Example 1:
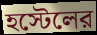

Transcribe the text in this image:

হস্টেলের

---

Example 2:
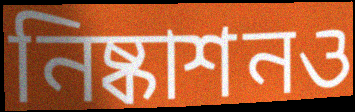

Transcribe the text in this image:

নিষ্কাশনও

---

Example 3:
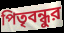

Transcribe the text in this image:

পিতৃবন্ধুর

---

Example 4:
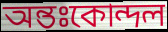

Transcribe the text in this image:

অন্তঃকোন্দল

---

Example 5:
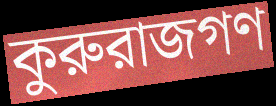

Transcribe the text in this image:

কুরুরাজগণ